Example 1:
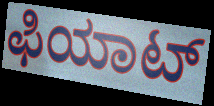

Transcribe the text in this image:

ಫಿಯಾಟ್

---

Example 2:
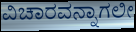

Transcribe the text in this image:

ವಿಚಾರವನ್ನಾಗಲೀ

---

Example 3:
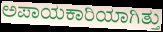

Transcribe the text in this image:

ಅಪಾಯಕಾರಿಯಾಗಿತ್ತು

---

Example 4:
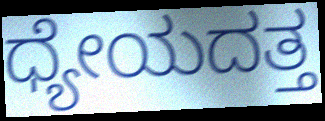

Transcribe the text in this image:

ಧ್ಯೇಯದತ್ತ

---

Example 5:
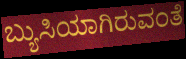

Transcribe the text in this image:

ಬ್ಯುಸಿಯಾಗಿರುವಂತೆ